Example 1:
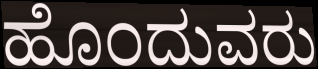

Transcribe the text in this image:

ಹೊಂದುವರು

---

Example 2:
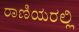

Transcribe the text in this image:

ರಾಣಿಯರಲ್ಲಿ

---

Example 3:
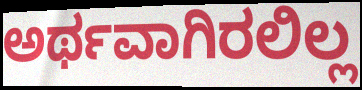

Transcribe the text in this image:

ಅರ್ಥವಾಗಿರಲಿಲ್ಲ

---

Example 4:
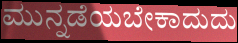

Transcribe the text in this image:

ಮುನ್ನಡೆಯಬೇಕಾದುದು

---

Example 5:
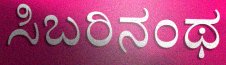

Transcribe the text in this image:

ಸಿಬರಿನಂಥ